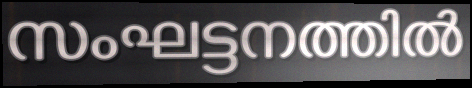
സംഘട്ടനത്തിൽ